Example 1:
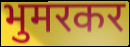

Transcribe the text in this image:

भुमरकर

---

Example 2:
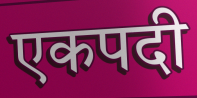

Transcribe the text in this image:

एकपदी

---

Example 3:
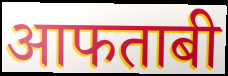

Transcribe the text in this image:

आफताबी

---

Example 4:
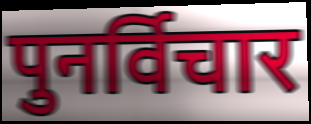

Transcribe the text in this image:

पुनर्विचार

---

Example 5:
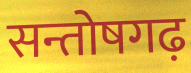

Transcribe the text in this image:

सन्तोषगढ़